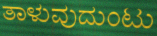
ತಾಳುವುದುಂಟು